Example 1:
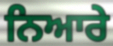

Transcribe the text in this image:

ਨਿਆਰੇ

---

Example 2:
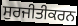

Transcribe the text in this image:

ਸੁਰਜੀਤੀਕਰਨ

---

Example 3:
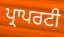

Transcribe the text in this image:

ਪ੍ਰਾਪਰਟੀ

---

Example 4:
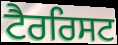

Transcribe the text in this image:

ਟੈਰਰਿਸਟ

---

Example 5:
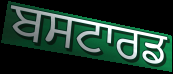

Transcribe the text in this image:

ਬਸਟਾਰਡ